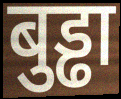
बुड्ढा